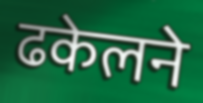
ढकेलने